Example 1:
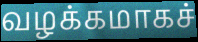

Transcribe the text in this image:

வழக்கமாகச்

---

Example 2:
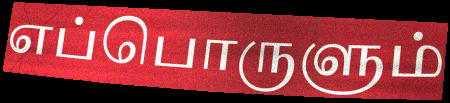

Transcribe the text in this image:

எப்பொருளும்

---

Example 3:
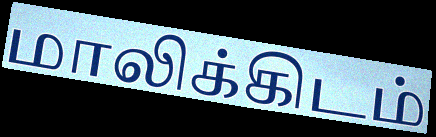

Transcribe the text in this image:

மாலிக்கிடம்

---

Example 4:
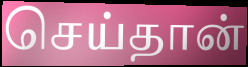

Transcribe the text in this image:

செய்தான்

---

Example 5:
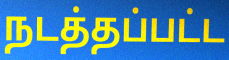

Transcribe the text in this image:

நடத்தப்பட்ட